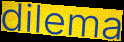
dilema